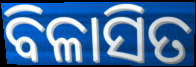
ବିଳାସିତ